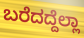
ಬರೆದದ್ದೆಲ್ಲಾ